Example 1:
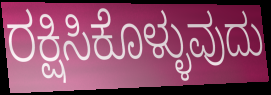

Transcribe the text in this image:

ರಕ್ಷಿಸಿಕೊಳ್ಳುವುದು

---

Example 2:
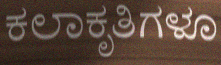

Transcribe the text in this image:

ಕಲಾಕೃತಿಗಳೂ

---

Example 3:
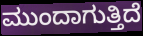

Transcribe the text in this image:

ಮುಂದಾಗುತ್ತಿದೆ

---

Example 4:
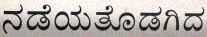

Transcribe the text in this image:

ನಡೆಯತೊಡಗಿದ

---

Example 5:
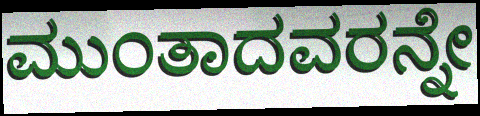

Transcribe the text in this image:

ಮುಂತಾದವರನ್ನೇ